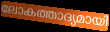
ലോകത്താദ്യമായി